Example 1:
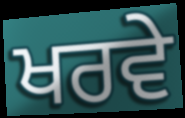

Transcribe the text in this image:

ਖਰਵੇ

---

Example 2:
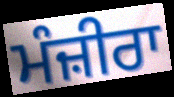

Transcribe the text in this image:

ਮੰਜ਼ੀਰਾ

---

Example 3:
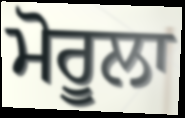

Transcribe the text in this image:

ਮੋਰੂਲਾ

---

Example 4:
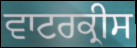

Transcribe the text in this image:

ਵਾਟਰਕ੍ਰੀਸ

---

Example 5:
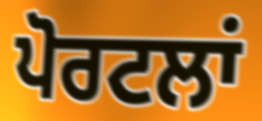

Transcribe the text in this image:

ਪੋਰਟਲਾਂ